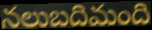
నలుబదిమంది